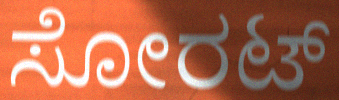
ಸೋರಟ್